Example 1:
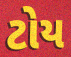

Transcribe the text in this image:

ટોય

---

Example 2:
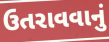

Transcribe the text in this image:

ઉતરાવવાનું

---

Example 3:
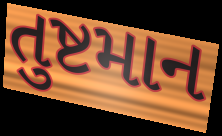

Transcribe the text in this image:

તુષ્ટમાન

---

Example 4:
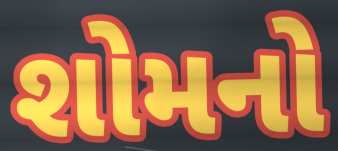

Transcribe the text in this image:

શોમનો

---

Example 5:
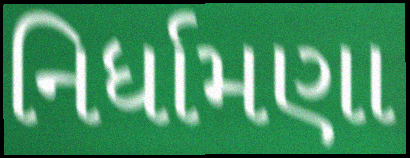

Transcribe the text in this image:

નિર્ધામણા